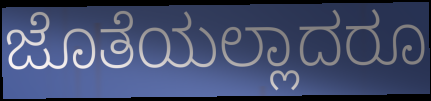
ಜೊತೆಯಲ್ಲಾದರೂ